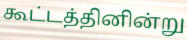
கூட்டத்தினின்று